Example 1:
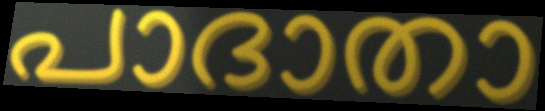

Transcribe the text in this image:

പാദാതാ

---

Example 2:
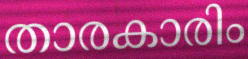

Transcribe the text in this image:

താരകാരിം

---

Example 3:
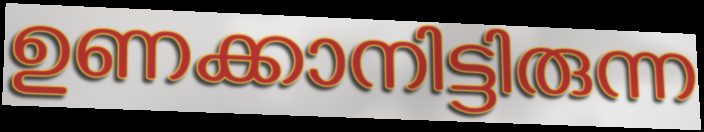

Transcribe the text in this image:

ഉണക്കാനിട്ടിരുന്ന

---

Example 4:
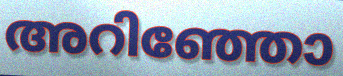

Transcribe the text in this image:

അറിഞ്ഞോ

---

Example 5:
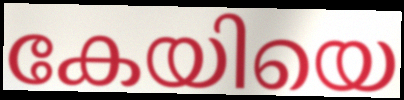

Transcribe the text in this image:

കേയിയെ